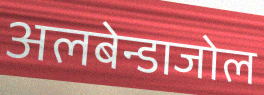
अलबेन्डाजोल